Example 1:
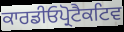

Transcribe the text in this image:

ਕਾਰਡੀਓਪ੍ਰੋਟੈਕਟਿਵ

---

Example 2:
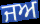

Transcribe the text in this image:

ਜਅ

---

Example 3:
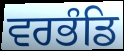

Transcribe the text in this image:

ਵਰਭੰਡਿ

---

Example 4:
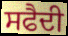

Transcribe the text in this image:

ਸਫੈਦੀ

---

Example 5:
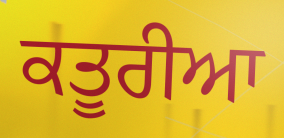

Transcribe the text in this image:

ਕਤੂਰੀਆ